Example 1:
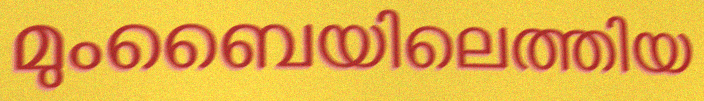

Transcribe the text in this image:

മുംബൈയിലെത്തിയ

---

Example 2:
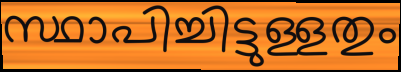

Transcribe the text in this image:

സ്ഥാപിച്ചിട്ടുള്ളതും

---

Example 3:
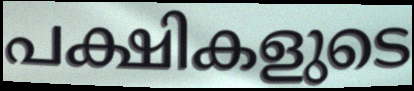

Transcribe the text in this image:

പക്ഷികളുടെ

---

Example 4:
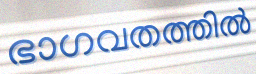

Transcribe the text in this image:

ഭാഗവതത്തിൽ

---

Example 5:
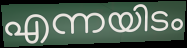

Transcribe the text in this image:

എന്നയിടം